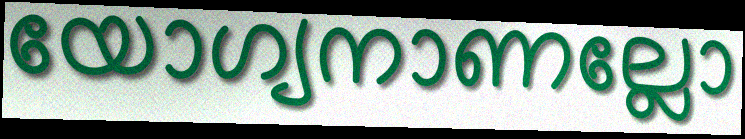
യോഗ്യനാണല്ലോ